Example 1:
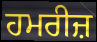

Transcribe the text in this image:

ਹਮਰੀਜ਼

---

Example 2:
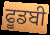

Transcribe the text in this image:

ਫੂਡਬੀ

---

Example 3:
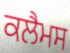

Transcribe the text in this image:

ਕਲੈਮਸ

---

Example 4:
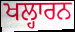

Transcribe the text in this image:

ਖਲ੍ਹਾਰਨ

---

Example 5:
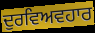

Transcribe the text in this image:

ਦੁਰਵਿਅਵਹਾਰ